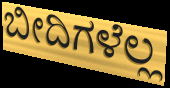
ಬೀದಿಗಳೆಲ್ಲ